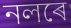
নলৰে